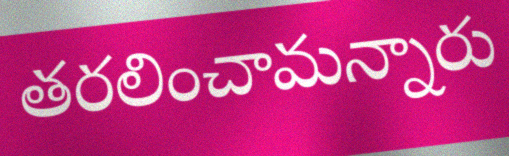
తరలించామన్నారు